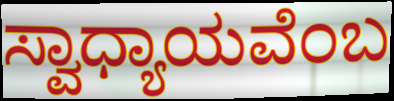
ಸ್ವಾಧ್ಯಾಯವೆಂಬ